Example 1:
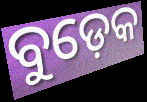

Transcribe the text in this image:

ବୁଡ଼େକ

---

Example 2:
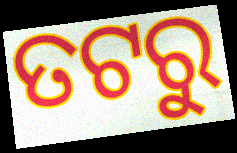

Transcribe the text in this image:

ତଟରୁ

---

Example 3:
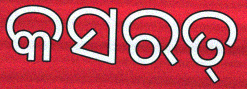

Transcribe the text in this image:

କସରତ୍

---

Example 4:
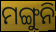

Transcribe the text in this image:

ମଙ୍ଗୁନି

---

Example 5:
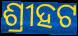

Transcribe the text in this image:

ଶ୍ରୀହଟ